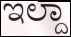
ಇಲ್ದಾ